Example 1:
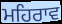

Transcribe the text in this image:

ਮਹਿਰਾਵ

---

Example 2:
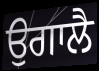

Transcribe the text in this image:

ਉਗਾਲੈ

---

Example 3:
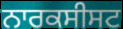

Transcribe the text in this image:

ਨਾਰਕਸੀਸਟ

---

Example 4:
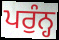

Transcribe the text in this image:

ਪਰੁੰਨ੍ਹ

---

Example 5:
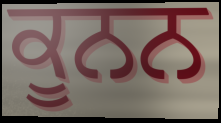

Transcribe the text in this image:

ਕੂਨਨ